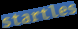
startles